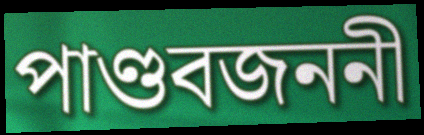
পাণ্ডবজননী